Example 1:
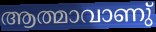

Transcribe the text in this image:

ആത്മാവാണു്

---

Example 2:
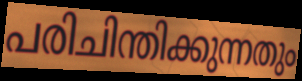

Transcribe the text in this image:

പരിചിന്തിക്കുന്നതും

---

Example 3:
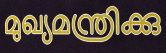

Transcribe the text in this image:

മുഖ്യമന്ത്രിക്കു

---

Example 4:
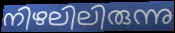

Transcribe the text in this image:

നിഴലിലിരുന്നു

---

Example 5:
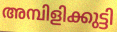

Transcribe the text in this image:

അമ്പിളിക്കുട്ടി